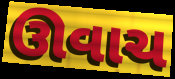
ઊવાચ